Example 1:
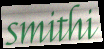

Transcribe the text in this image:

smithi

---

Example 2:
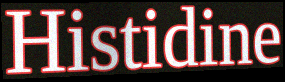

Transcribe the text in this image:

Histidine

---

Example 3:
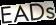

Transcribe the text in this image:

EADs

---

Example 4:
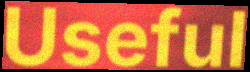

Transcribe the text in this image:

Useful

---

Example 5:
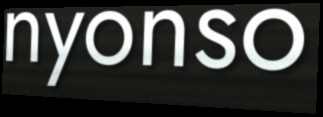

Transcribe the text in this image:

nyonso